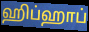
ஹிப்ஹாப்